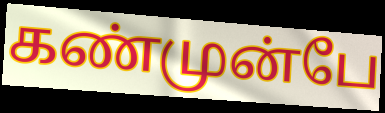
கண்முன்பே